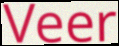
Veer